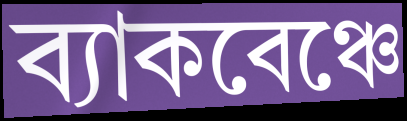
ব্যাকবেঞ্চে